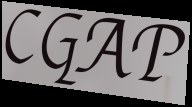
CGAP